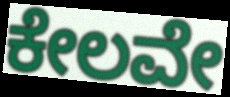
ಕೇಲವೇ